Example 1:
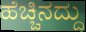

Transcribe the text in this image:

ಹೆಚ್ಚಿನದ್ದು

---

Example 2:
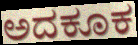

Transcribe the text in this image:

ಅದಕೂಕ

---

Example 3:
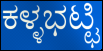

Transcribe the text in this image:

ಕಳ್ಳಭಟ್ಟಿ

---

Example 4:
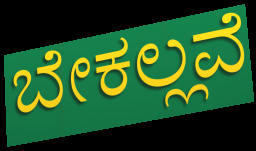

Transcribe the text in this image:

ಬೇಕಲ್ಲವೆ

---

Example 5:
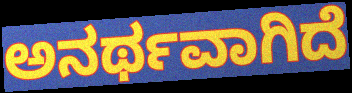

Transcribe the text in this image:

ಅನರ್ಥವಾಗಿದೆ